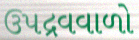
ઉપદ્રવવાળો